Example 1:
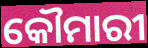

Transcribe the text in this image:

କୌମାରୀ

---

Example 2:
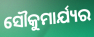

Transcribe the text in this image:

ସୌକୁମାର୍ଯ୍ୟର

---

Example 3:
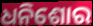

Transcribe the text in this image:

ଧନିଶୋର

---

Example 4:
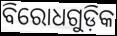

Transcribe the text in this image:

ବିରୋଧଗୁଡ଼ିକ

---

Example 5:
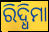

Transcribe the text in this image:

ରିଦ୍ଧିମା